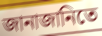
জানাজানিতে